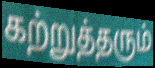
கற்றுத்தரும்